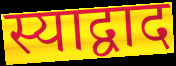
स्याद्वाद